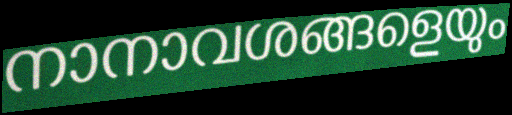
നാനാവശങ്ങളെയും